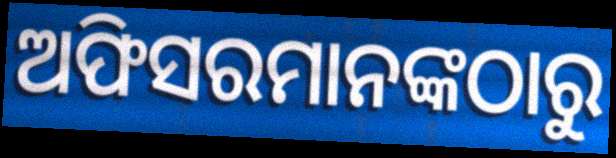
ଅଫିସରମାନଙ୍କଠାରୁ